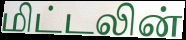
மிட்டலின்